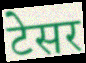
टेसर